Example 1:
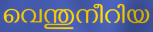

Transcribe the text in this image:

വെന്തുനീറിയ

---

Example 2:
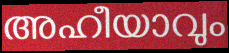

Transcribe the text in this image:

അഹീയാവും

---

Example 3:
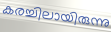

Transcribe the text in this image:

കരച്ചിലായിരുന്നു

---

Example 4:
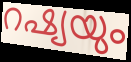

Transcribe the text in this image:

റഷ്യയും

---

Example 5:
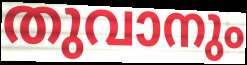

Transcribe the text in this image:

തുവാനും